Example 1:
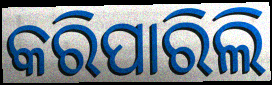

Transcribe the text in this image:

କରିପାରିଲି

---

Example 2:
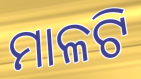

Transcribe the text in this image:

ମାଳଟି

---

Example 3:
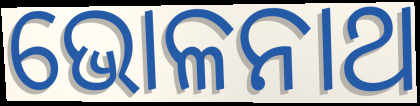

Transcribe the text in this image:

ଭୋଳନାଥ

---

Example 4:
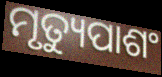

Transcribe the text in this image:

ମୃତ୍ୟୁପାଶଂ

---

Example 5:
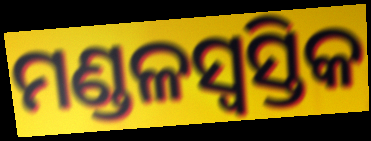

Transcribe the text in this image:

ମଣ୍ଡଳସ୍ୱସ୍ତିକ